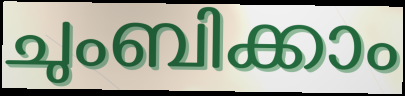
ചുംബിക്കാം